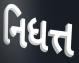
નિધત્ત